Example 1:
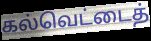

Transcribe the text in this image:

கல்வெட்டைத்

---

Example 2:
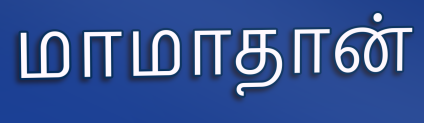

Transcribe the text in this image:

மாமாதான்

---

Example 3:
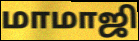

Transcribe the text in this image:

மாமாஜி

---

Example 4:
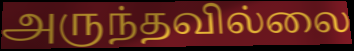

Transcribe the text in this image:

அருந்தவில்லை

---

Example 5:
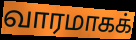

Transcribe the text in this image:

வாரமாகக்